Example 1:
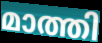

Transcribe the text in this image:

മാത്തി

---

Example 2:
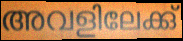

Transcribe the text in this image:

അവളിലേക്കു്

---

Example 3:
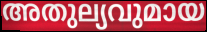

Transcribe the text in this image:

അതുല്യവുമായ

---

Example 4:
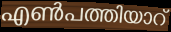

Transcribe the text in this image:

എൺപത്തിയാറ്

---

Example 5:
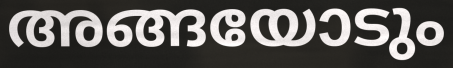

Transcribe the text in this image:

അങ്ങയോടും